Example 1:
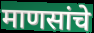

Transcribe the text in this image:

माणसांचे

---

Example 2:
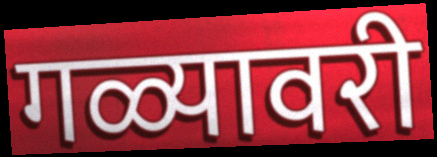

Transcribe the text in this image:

गळ्यावरी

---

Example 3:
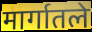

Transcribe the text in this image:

मार्गातले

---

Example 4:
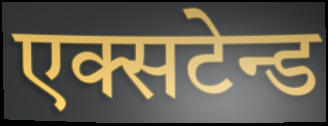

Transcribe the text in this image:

एक्सटेन्ड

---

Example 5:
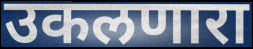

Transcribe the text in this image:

उकलणारा